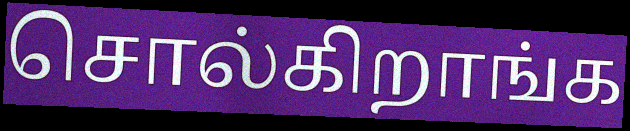
சொல்கிறாங்க